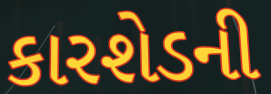
કારશેડની